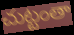
చుట్టంతా